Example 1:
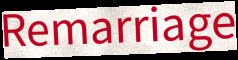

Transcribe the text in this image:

Remarriage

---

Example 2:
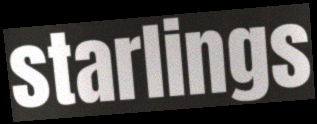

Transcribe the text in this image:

starlings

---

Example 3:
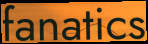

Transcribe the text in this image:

fanatics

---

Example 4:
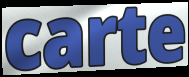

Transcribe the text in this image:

carte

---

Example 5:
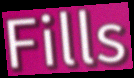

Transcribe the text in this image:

Fills